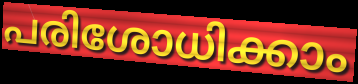
പരിശോധിക്കാം